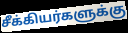
சீக்கியர்களுக்கு